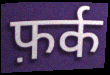
फ़र्क